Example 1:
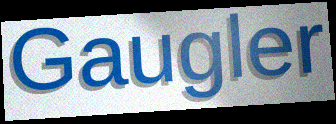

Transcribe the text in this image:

Gaugler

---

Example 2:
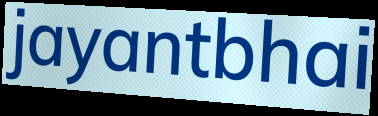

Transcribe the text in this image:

jayantbhai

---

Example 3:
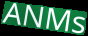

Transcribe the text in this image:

ANMs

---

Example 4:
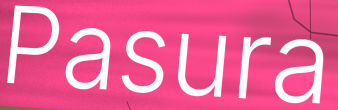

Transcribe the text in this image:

Pasura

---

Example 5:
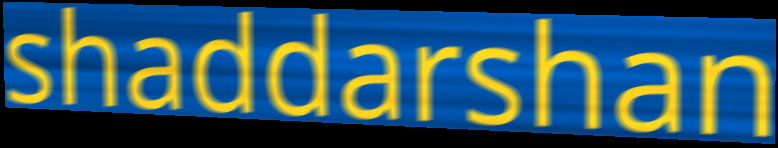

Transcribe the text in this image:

shaddarshan